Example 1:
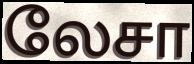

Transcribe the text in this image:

லேசா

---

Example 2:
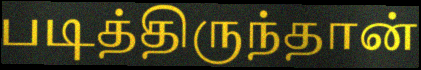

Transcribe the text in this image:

படித்திருந்தான்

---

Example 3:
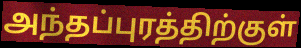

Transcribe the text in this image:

அந்தப்புரத்திற்குள்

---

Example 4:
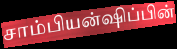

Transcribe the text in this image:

சாம்பியன்ஷிப்பின்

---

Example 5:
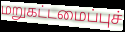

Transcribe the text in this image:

மறுகட்டமைப்புச்